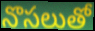
నొసలుతో